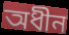
অধীন